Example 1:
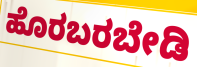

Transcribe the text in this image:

ಹೊರಬರಬೇಡಿ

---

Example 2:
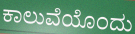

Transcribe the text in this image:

ಕಾಲುವೆಯೊಂದು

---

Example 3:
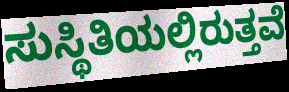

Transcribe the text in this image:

ಸುಸ್ಥಿತಿಯಲ್ಲಿರುತ್ತವೆ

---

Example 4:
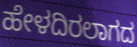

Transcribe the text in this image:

ಹೇಳದಿರಲಾಗದ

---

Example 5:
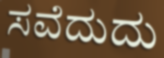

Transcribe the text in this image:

ಸವೆದುದು